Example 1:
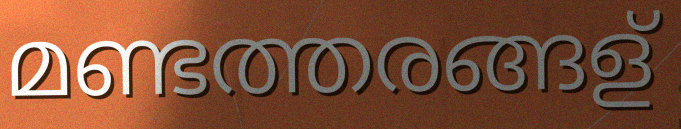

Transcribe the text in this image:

മണ്ടത്തരങ്ങള്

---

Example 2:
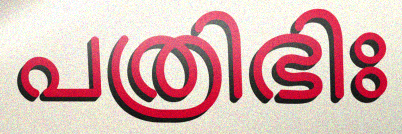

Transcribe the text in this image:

പത്രിഭിഃ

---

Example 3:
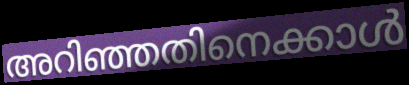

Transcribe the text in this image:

അറിഞ്ഞതിനെക്കാൾ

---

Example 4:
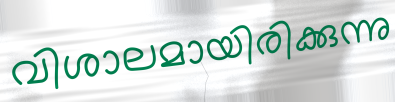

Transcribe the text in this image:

വിശാലമായിരിക്കുന്നു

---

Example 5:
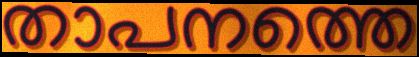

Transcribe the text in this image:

താപനത്തെ